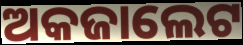
ଅକଜାଲେଟ